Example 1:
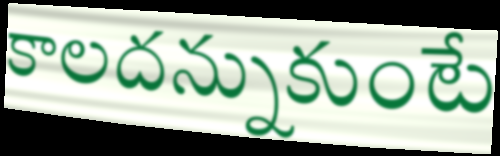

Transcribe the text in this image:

కాలదన్నుకుంటే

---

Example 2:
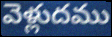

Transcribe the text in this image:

వెళ్లుదము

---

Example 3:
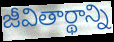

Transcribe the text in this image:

జీవితార్థాన్ని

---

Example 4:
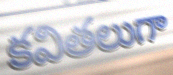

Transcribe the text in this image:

కవితలుగా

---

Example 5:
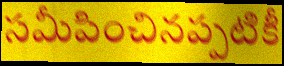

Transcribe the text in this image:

సమీపించినప్పటికీ